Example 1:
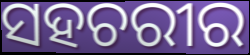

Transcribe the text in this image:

ସହଚରୀର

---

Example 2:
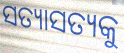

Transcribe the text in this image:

ସତ୍ୟାସତ୍ୟକୁ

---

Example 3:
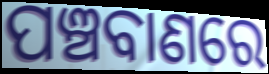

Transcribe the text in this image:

ପଞ୍ଚବାଣରେ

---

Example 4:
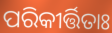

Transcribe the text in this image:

ପରିକୀର୍ତ୍ତିତାଃ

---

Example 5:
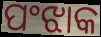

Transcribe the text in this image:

ପଂଝାକ